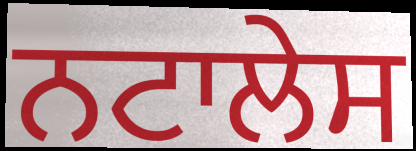
ਨਟਾਲੇਸ